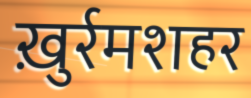
ख़ुर्रमशहर